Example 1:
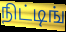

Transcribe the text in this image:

நிட்டிங்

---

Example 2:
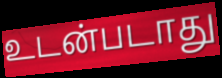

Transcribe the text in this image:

உடன்படாது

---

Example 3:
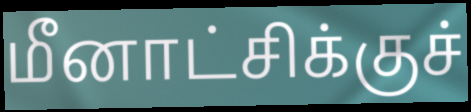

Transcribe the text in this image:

மீனாட்சிக்குச்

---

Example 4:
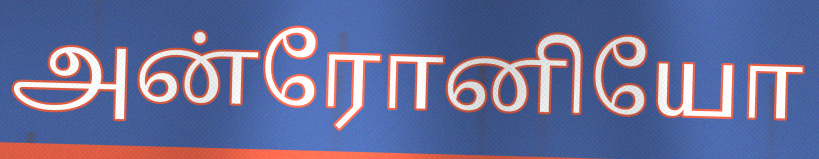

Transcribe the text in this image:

அன்ரோனியோ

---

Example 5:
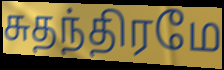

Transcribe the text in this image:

சுதந்திரமே